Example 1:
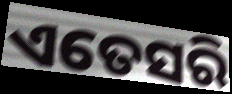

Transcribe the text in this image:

ଏତେସରି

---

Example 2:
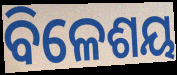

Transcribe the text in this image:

ବିଳେଶୟ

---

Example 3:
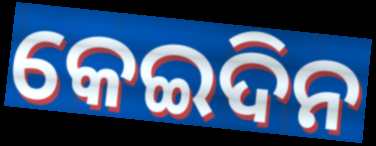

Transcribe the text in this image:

କେଇଦିନ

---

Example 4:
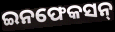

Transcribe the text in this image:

ଇନଫେକସନ୍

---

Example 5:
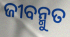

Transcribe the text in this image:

ଜୀବନ୍ମୁତ